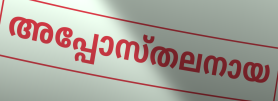
അപ്പോസ്തലനായ